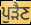
ਪੁੜੈਣ